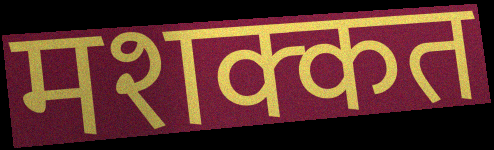
मशक्‍कत